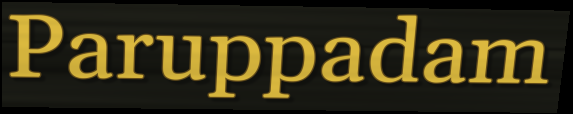
Paruppadam